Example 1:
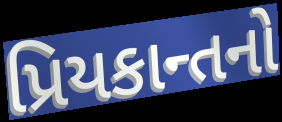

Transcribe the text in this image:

પ્રિયકાન્તનો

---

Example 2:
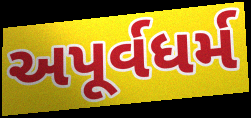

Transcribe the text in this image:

અપૂર્વધર્મ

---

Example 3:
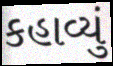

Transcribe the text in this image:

કહાવ્યું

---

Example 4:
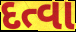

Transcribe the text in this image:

દત્વા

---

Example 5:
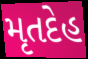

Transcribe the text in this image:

મૃતદેહ